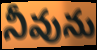
నీవును